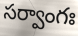
సర్వాంగః